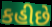
કહીછે